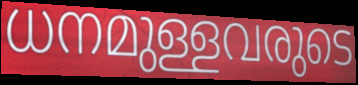
ധനമുള്ളവരുടെ